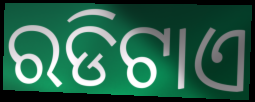
ରଡିଟାଏ